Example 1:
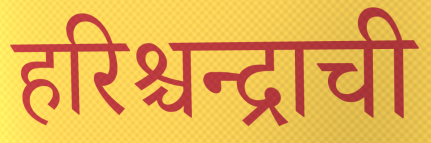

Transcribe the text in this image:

हरिश्चन्द्राची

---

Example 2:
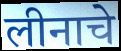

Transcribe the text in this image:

लीनाचे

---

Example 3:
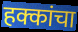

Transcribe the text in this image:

हक्कांचा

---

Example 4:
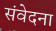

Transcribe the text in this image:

संवेदना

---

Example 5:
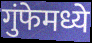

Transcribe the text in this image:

गुंफेमध्ये